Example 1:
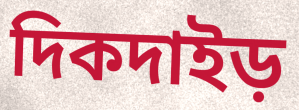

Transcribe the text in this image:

দিকদাইড়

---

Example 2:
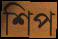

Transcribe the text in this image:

শিপ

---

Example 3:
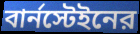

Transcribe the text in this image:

বার্নস্টেইনের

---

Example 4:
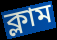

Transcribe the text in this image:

ক্লাম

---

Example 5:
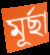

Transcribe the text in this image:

মূর্ছা